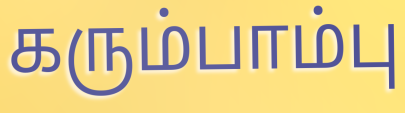
கரும்பாம்பு